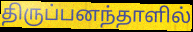
திருப்பனந்தாளில்